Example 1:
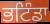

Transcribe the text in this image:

ਭਟਿੰਡਾ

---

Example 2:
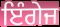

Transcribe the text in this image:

ਇੰਗੇਜ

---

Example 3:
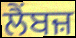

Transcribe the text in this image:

ਲੈਂਬਜ਼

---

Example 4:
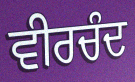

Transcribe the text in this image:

ਵੀਰਚੰਦ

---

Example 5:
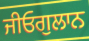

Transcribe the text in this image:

ਜੀਓਗੁਲਾਨ